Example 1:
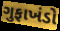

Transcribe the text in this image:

ગુફાખંડો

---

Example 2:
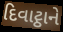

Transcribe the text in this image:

દિવાટ્ઠાને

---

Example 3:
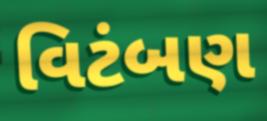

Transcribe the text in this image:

વિટંબણ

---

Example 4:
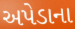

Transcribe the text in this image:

અપેડાના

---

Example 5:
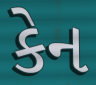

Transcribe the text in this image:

કેન